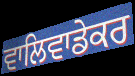
ਵਾਲਿਵਾਡੇਕਰ